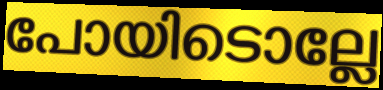
പോയിടൊല്ലേ